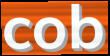
cob